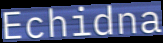
Echidna